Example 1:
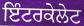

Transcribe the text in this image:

ਇੰਟਰਕੇਲੇਟ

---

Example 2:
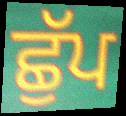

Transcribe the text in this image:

ਛੁੱਪ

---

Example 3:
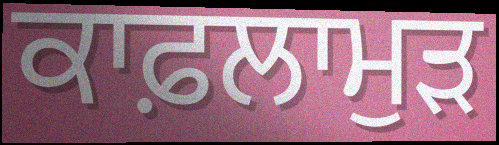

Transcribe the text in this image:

ਕਾਫ਼ਲਾਮੁੜ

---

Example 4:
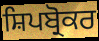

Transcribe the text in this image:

ਸ਼ਿਪਬ੍ਰੋਕਰ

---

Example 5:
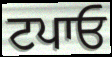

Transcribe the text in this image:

ਟਪਾਓ